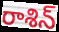
రాశిన్